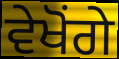
ਵੇਖੋਂਗੇ